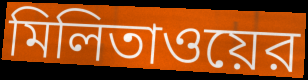
মিলিতাওয়ের